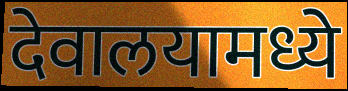
देवालयामध्ये